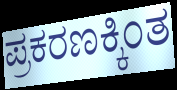
ಪ್ರಕರಣಕ್ಕಿಂತ